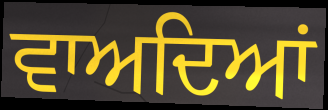
ਵਾਅਦਿਆਂ